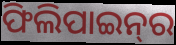
ଫିଲିପାଇନ୍‌ର